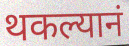
थकल्यानं